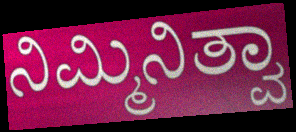
ನಿಮ್ಮಿನಿತ್ವಾ